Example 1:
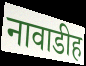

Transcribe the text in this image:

नावाडीह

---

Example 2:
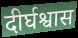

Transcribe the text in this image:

दीर्घश्वास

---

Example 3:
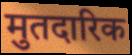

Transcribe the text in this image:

मुतदारिक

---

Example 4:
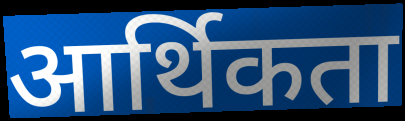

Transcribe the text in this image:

आर्थिकता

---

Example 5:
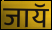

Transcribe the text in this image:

जायॅ